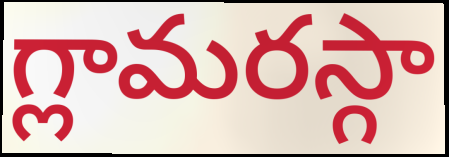
గ్లామరస్గా